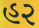
હર